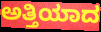
ಅತ್ತಿಯಾದ